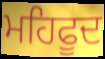
ਮਹਿਫੂਦ